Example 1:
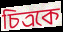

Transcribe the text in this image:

চিত্রকে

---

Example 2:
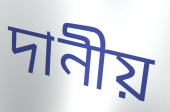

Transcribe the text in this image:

দানীয়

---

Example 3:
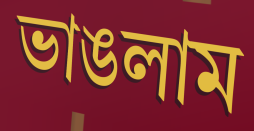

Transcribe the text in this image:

ভাঙলাম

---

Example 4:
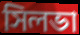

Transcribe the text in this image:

সিলভা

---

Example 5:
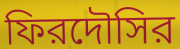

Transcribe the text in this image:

ফিরদৌসির